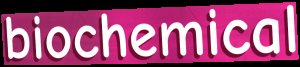
biochemical